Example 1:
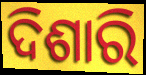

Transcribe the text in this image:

ଦିଶାରି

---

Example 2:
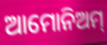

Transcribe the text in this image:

ଆମୋନିଅମ୍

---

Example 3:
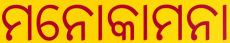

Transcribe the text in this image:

ମନୋକାମନା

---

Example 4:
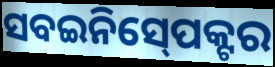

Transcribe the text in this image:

ସବଇନିସ୍‍ପେକ୍ଟର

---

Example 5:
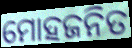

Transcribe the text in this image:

ମୋହଜନିତ